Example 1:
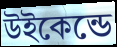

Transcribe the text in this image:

উইকেন্ডে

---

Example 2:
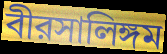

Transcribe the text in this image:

বীরসালিঙ্গম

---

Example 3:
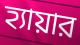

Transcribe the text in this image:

হ্যায়ার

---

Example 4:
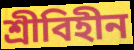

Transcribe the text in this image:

শ্রীবিহীন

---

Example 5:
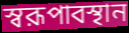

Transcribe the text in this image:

স্বরূপাবস্থান